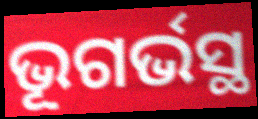
ଭୂଗର୍ଭସ୍ଥ